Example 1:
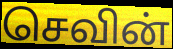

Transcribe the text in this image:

செவின்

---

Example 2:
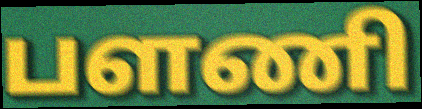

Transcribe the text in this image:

பளணி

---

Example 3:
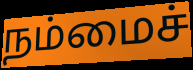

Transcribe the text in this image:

நம்மைச்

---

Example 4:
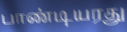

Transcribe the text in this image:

பாண்டியரது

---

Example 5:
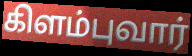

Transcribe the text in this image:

கிளம்புவார்